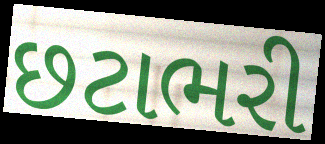
છટાભરી